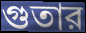
গুতার